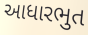
આધારભુત